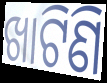
ଖାଟିଣି